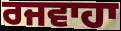
ਰਜਵਾਹਾ